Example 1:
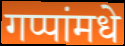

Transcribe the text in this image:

गप्पांमधे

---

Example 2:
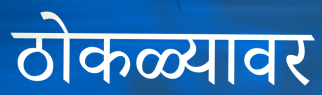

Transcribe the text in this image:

ठोकळ्यावर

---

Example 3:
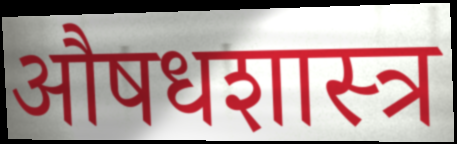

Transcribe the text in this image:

औषधशास्त्र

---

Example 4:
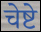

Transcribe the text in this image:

चेष्टे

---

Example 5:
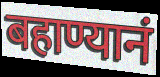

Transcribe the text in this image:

बहाण्यानं